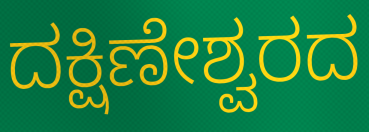
ದಕ್ಷಿಣೇಶ್ವರದ